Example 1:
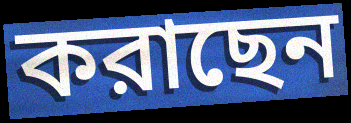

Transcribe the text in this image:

করাছেন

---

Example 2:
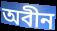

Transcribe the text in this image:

অবীন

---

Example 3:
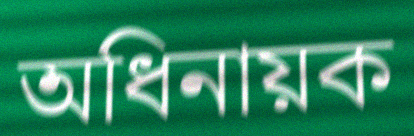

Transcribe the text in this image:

অধিনায়ক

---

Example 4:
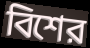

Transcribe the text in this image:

বিশের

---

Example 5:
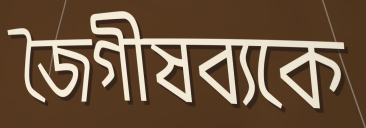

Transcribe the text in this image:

জৈগীষব্যকে